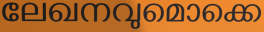
ലേഖനവുമൊക്കെ